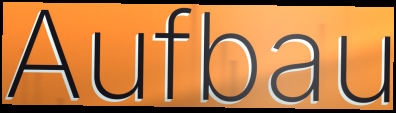
Aufbau